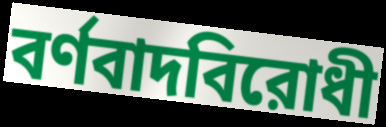
বর্ণবাদবিরোধী